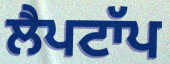
ਲੈਪਟਾੱਪ